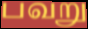
பவறு